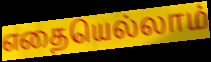
எதையெல்லாம்